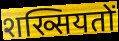
शख्सियतों